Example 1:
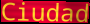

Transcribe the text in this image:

Ciudad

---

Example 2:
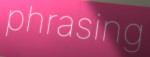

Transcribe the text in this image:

phrasing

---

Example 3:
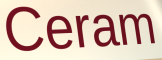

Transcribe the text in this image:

Ceram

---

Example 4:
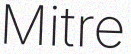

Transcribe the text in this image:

Mitre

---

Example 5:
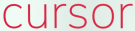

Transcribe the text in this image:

cursor